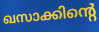
ഖസാക്കിന്റെ